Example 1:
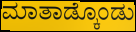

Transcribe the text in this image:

ಮಾತಾಡ್ಕೊಂಡು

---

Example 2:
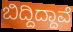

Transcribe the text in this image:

ಬಿದ್ದಿದ್ದಾವೆ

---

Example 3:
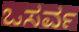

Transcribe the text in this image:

ಒಸರ್ವ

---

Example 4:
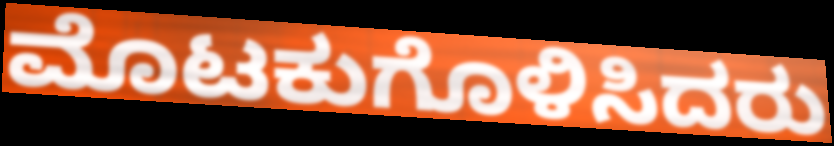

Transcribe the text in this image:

ಮೊಟಕುಗೊಳಿಸಿದರು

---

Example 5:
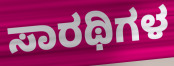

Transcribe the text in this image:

ಸಾರಥಿಗಳ